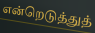
என்றெடுத்துத்